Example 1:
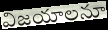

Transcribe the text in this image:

విజయాలనూ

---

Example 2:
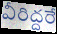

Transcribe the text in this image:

వీరిద్దరే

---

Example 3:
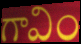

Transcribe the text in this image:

గావిం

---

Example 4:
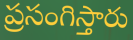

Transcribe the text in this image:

ప్రసంగిస్తారు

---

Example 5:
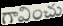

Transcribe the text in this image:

గావించు